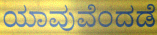
ಯಾವುವೆಂದಡೆ